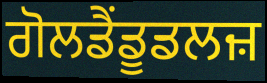
ਗੋਲਡੈਂਡੂਡਲਜ਼